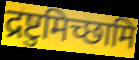
द्रष्टुमिच्छामि